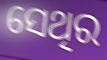
ସେଥିର